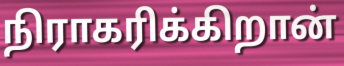
நிராகரிக்கிறான்